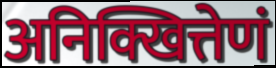
अनिक्खित्तेणं